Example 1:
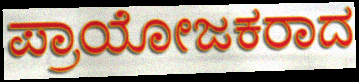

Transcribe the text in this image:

ಪ್ರಾಯೋಜಕರಾದ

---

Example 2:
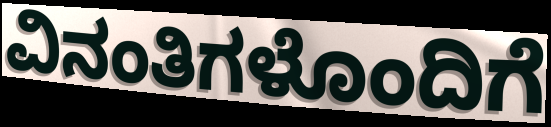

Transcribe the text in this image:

ವಿನಂತಿಗಳೊಂದಿಗೆ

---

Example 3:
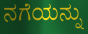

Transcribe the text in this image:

ನಗೆಯನ್ನು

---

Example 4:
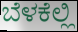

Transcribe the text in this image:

ಬೆಳಕೆಲ್ಲಿ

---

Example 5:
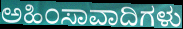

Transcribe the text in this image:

ಅಹಿಂಸಾವಾದಿಗಳು